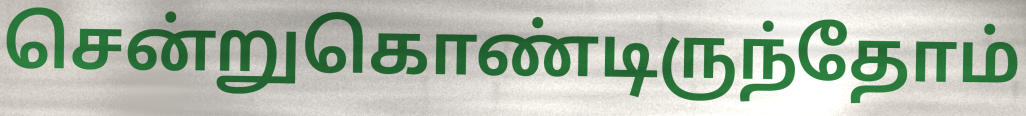
சென்றுகொண்டிருந்தோம்